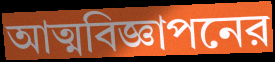
আত্মবিজ্ঞাপনের